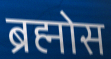
ब्रह्मोस